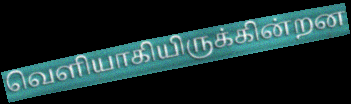
வெளியாகியிருக்கின்றன